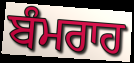
ਬੰਮਰਾਹ